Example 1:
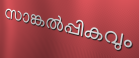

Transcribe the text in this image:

സാങ്കൽപ്പികവും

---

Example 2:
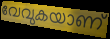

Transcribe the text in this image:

വേവുകയാണ്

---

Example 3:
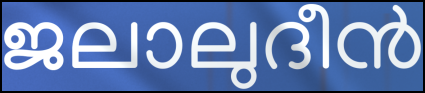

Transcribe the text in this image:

ജലാലുദീൻ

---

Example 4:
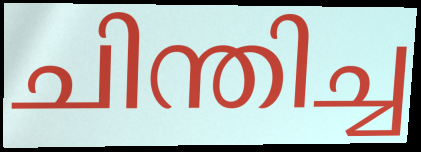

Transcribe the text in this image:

ചിന്തിച്ച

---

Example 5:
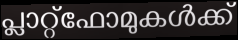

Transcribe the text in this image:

പ്ലാറ്റ്ഫോമുകൾക്ക്